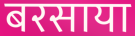
बरसाया